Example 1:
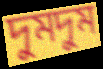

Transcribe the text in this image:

দুমদুম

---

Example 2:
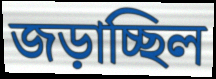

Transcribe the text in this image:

জড়াচ্ছিল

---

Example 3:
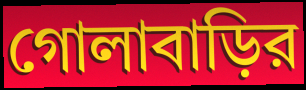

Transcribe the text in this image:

গোলাবাড়ির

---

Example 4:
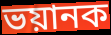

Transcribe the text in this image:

ভয়ানক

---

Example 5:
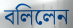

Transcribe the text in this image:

বলিলেন